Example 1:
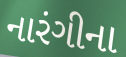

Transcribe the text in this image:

નારંગીના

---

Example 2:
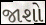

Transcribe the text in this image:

જાશો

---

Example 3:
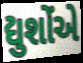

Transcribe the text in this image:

દ્યુશોંએ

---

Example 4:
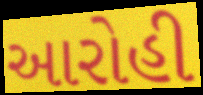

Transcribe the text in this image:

આરોહી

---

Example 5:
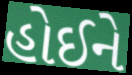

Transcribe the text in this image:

હોઈને